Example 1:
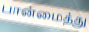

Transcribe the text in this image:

பான்மைத்து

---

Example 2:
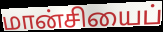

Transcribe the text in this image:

மான்சியைப்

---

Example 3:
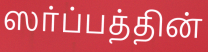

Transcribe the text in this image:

ஸர்ப்பத்தின்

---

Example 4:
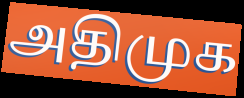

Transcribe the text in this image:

அதிமுக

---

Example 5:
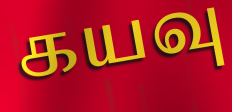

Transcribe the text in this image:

கயவு